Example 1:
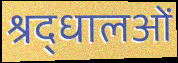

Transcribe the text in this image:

श्रद्धालओं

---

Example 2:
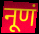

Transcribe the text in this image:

नूणं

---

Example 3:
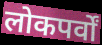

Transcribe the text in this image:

लोकपर्वों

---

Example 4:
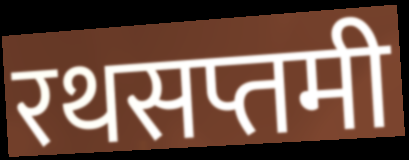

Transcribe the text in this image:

रथसप्तमी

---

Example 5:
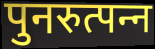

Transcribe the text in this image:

पुनरुत्पन्न